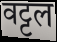
वट्टल